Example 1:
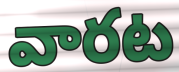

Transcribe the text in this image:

వారట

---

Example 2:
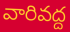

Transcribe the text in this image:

వారివద్ద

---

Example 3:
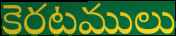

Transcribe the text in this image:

కెరటములు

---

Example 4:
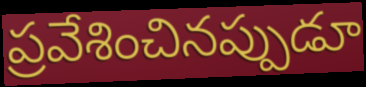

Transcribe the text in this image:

ప్రవేశించినప్పుడూ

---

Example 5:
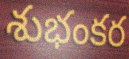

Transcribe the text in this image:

శుభంకర